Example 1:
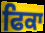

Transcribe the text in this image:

ਫਿਕਾ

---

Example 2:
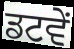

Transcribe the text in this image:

ਡਟਵੇਂ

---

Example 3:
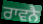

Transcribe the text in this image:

ਰਾਵਨੈ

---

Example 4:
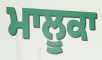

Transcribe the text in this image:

ਮਾਲੂਕਾ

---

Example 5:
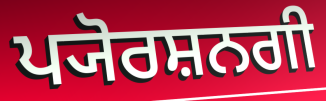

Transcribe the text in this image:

ਪ੍ਯੋਰਸ਼ਨਗੀ